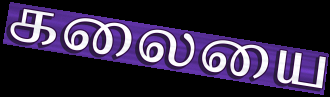
கலையை